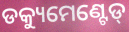
ଡକ୍ୟୁମେଣ୍ଟେଡ୍